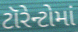
ટૉરેન્ટોમાં